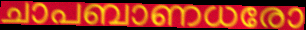
ചാപബാണധരോ